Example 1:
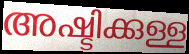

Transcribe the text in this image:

അഷ്ടിക്കുള്ള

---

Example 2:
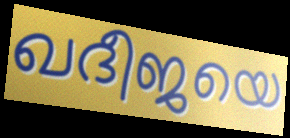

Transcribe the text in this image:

ഖദീജയെ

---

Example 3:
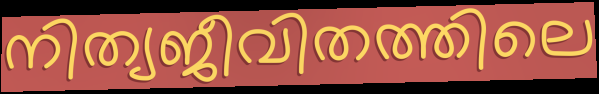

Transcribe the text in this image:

നിത്യജീവിതത്തിലെ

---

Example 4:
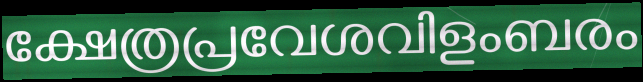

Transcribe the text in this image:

ക്ഷേത്രപ്രവേശവിളംബരം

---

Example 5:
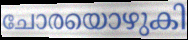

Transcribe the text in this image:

ചോരയൊഴുകി